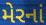
મેરનાં